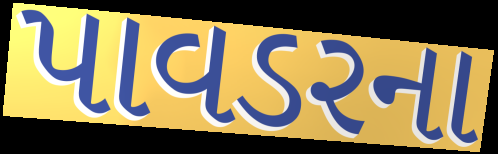
પાવડરના